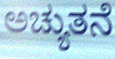
ಅಚ್ಯುತನೆ